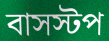
বাসস্টপ